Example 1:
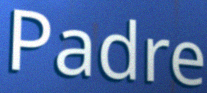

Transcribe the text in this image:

Padre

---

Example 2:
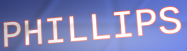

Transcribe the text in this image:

PHILLIPS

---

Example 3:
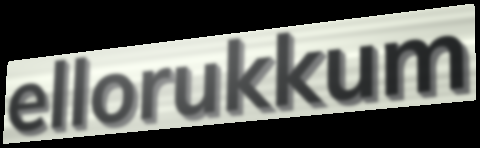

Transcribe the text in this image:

ellorukkum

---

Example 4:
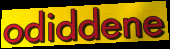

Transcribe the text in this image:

odiddene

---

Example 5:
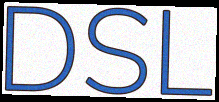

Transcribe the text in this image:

DSL